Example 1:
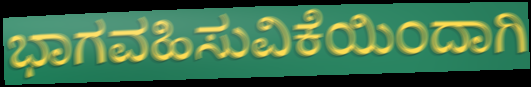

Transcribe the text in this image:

ಭಾಗವಹಿಸುವಿಕೆಯಿಂದಾಗಿ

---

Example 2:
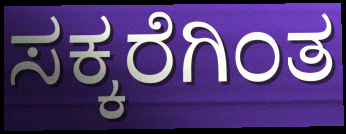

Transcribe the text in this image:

ಸಕ್ಕರೆಗಿಂತ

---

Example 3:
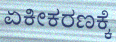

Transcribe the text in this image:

ಏಕೀಕರಣಕ್ಕೆ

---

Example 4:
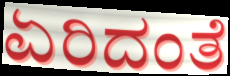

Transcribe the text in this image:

ಏರಿದಂತೆ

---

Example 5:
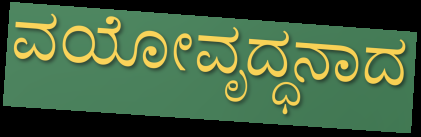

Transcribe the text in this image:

ವಯೋವೃದ್ಧನಾದ